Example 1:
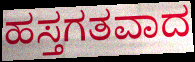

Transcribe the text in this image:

ಹಸ್ತಗತವಾದ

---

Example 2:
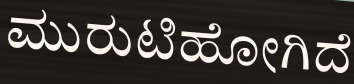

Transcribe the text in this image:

ಮುರುಟಿಹೋಗಿದೆ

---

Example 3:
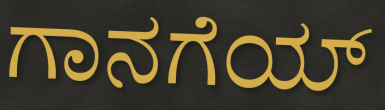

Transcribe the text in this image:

ಗಾನಗೆಯ್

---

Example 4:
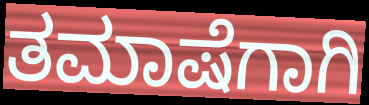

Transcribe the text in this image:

ತಮಾಷೆಗಾಗಿ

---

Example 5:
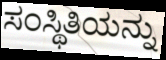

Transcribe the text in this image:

ಸಂಸ್ಥಿತಿಯನ್ನು